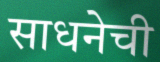
साधनेची